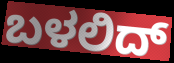
ಬಳಲಿದ್